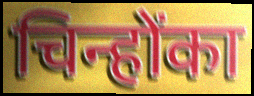
चिन्होंका